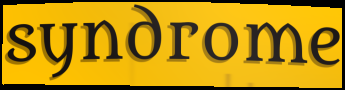
syndrome